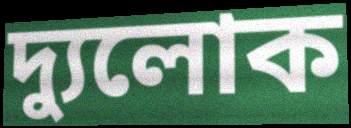
দ্যুলোক